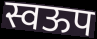
स्वऊप